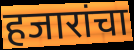
हजारांचा